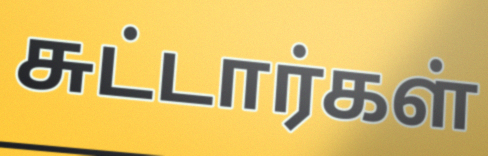
சுட்டார்கள்